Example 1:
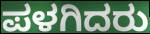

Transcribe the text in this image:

ಪಳಗಿದರು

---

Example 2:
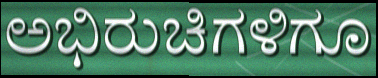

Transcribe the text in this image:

ಅಭಿರುಚಿಗಳಿಗೂ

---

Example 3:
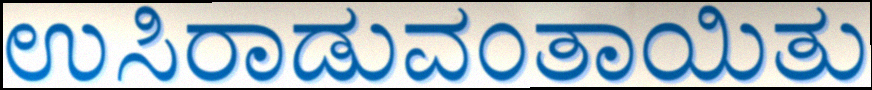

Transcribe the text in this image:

ಉಸಿರಾಡುವಂತಾಯಿತು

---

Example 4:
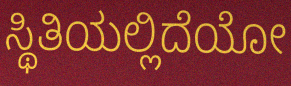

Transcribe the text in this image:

ಸ್ಥಿತಿಯಲ್ಲಿದೆಯೋ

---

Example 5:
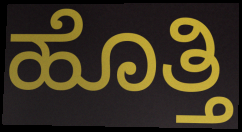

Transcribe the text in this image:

ಹೊತ್ತಿ